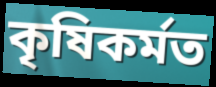
কৃষিকৰ্মত